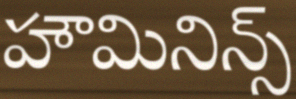
హౌమినిన్స్